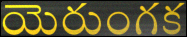
యెరుంగక